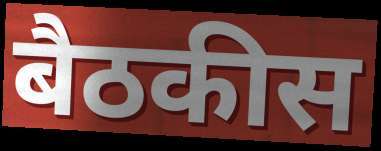
बैठकीस